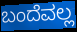
ಬಂದೆವಲ್ಲ